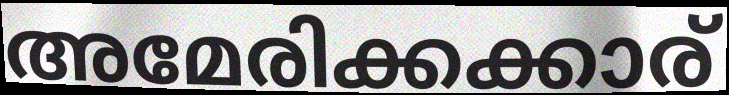
അമേരിക്കക്കാര്